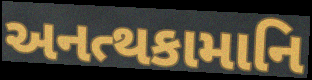
અનત્થકામાનિ